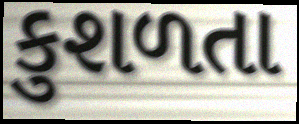
કુશળતા